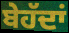
ਬੇਹੱਦਾਂ